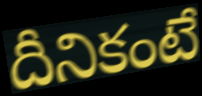
దీనికంటే